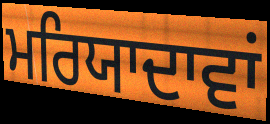
ਮਰਿਯਾਦਾਵਾਂ